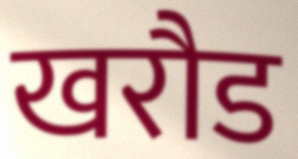
खरौड